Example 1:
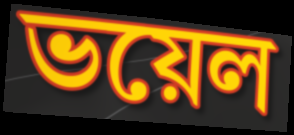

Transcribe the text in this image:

ভয়েল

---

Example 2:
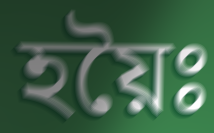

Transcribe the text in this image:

হয়ৈঃ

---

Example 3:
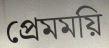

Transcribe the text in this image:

প্রেমময়ি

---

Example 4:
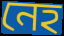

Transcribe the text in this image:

নেহ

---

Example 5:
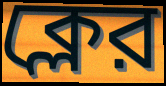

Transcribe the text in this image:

ক্লের